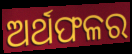
ଅର୍ଥଫଳର